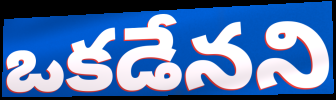
ఒకడేనని